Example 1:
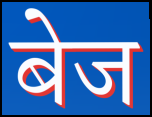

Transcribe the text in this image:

बेज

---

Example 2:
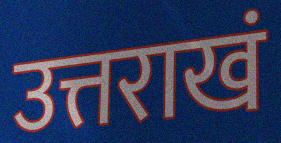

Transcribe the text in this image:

उत्तराखं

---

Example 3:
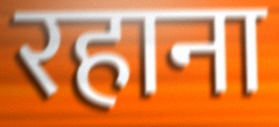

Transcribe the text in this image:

रहाना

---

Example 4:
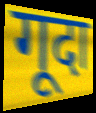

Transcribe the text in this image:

गूदा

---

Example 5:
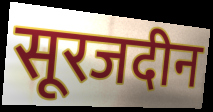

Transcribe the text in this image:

सूरजदीन